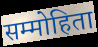
सम्मोहिता